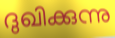
ദുഖിക്കുന്നു